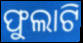
ଫୁଲାଟି